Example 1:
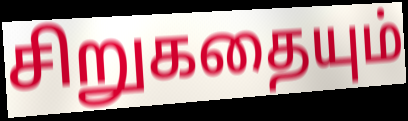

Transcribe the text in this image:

சிறுகதையும்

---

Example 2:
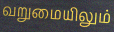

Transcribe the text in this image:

வறுமையிலும்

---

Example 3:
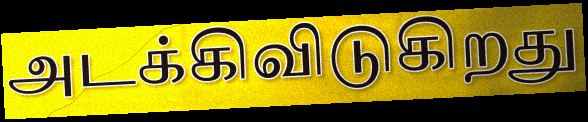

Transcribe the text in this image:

அடக்கிவிடுகிறது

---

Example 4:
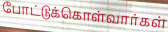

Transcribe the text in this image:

போட்டுக்கொள்வார்கள்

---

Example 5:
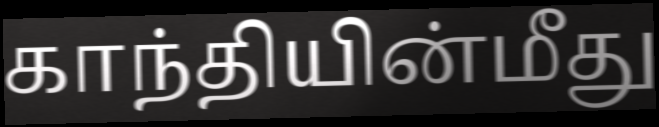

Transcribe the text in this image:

காந்தியின்மீது